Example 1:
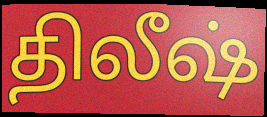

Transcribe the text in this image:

திலீஷ்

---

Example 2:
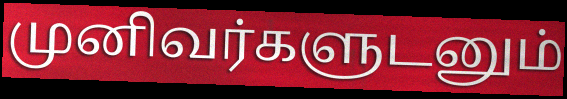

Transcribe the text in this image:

முனிவர்களுடனும்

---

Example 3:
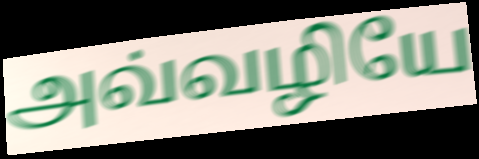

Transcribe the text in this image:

அவ்வழியே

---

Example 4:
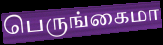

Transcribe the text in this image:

பெருங்கைமா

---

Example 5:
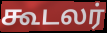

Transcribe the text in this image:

கூடலர்